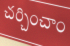
చర్చించాం